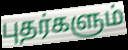
புதர்களும்